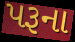
પરૂના